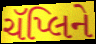
ચૅપ્લિને